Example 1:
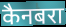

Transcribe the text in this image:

कैनबरा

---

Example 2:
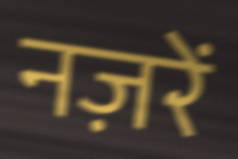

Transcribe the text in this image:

नज़रें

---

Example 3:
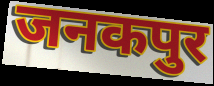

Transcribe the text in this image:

जनकपुर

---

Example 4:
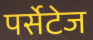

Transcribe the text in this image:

पर्सेटेज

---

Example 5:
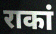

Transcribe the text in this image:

राकां